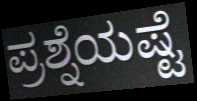
ಪ್ರಶ್ನೆಯಷ್ಟೆ